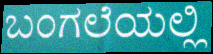
ಬಂಗಲೆಯಲ್ಲಿ